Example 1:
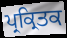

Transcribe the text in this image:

ਪ੍ਰਕ੍ਰਿਤਕ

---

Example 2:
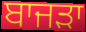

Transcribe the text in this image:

ਬਾਜਡ਼ਾ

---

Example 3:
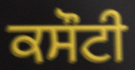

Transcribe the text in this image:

ਕਸੌਟੀ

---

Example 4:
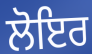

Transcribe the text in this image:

ਲੋਇਰ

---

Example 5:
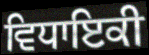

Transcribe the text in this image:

ਵਿਧਾਇਕੀ